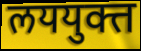
लययुक्त